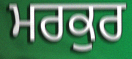
ਮਰਕੁਰ